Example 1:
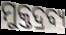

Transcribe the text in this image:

ମୁକ୍ତଦ୍ରବ୍ୟ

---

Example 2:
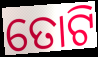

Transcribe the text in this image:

ତୋଟି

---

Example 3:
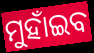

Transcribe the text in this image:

ମୁହାଁଇବ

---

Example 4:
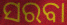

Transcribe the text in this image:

ସରବା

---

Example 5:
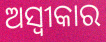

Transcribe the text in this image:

ଅସ୍ବୀକାର